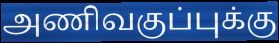
அணிவகுப்புக்கு